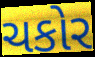
ચકોર